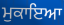
ਮੁਕਾਇਆ